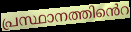
പ്രസ്ഥാനത്തിൻെറ